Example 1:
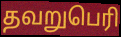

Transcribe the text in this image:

தவறுபெரி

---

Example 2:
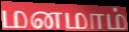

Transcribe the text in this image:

மனமாம்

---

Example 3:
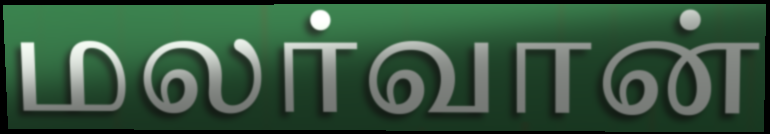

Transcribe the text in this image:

மலர்வான்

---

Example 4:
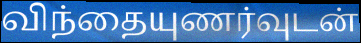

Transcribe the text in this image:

விந்தையுணர்வுடன்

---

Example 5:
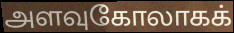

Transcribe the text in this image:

அளவுகோலாகக்